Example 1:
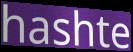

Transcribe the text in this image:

hashte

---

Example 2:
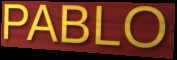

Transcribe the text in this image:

PABLO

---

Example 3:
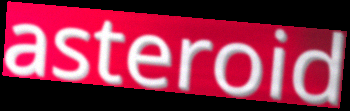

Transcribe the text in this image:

asteroid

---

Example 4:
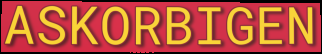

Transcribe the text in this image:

ASKORBIGEN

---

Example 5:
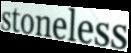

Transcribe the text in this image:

stoneless